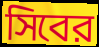
সিবের